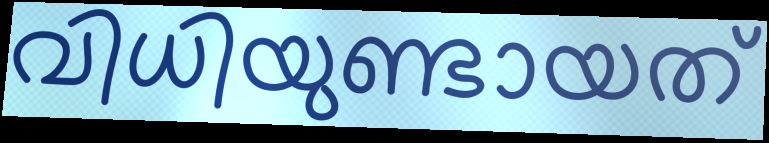
വിധിയുണ്ടായത്